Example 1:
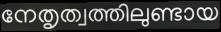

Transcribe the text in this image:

നേതൃത്വത്തിലുണ്ടായ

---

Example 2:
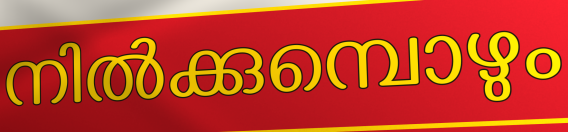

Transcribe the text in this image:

നിൽക്കുമ്പൊഴും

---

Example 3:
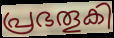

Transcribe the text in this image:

പ്രഭതൂകി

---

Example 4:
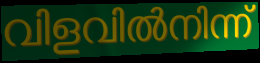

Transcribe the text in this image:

വിളവിൽനിന്ന്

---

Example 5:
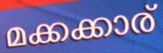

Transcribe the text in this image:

മക്കക്കാര്